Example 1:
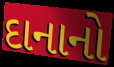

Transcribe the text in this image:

દાનાનો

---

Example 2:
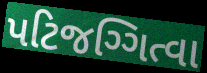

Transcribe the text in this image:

પટિજગ્ગિત્વા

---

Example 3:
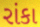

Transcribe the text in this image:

રાંકા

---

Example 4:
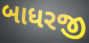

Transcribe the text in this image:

બાધરજી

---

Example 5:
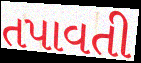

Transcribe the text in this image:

તપાવતી